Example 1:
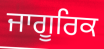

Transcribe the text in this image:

ਜਾਗੂਰਿਕ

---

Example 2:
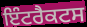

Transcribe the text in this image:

ਇੰਟਰੈਕਟਸ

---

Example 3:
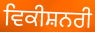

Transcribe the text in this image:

ਵਿਕੀਸ਼ਨਰੀ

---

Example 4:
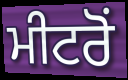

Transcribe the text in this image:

ਮੀਟਰੋਂ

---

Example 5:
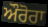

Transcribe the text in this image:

ਔਰੋਰਾ